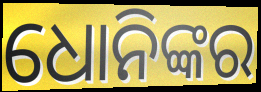
ଧୋନିଙ୍କର